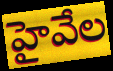
హైవేల